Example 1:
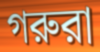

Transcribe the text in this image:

গরুরা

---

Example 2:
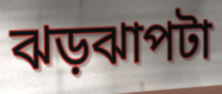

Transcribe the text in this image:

ঝড়ঝাপটা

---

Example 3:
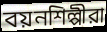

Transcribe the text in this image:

বয়নশিল্পীরা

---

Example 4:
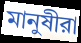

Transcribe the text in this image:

মানুষীরা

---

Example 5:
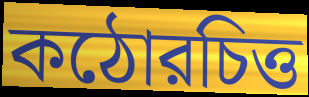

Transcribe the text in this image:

কঠোরচিত্ত